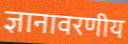
ज्ञानावरणीय